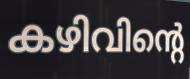
കഴിവിന്റെ